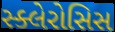
સ્ક્લેરોસિસ